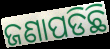
ଜଣାପଡିଛି